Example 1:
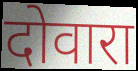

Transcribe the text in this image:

दोवारा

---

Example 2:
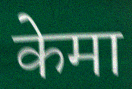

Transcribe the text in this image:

केमा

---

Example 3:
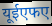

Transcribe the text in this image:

यूईएफए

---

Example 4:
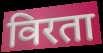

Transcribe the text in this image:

विरता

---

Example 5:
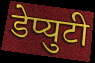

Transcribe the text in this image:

डेप्युटी